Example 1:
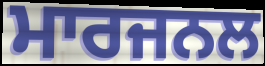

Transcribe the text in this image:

ਮਾਰਜਨਲ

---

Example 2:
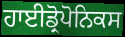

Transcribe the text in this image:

ਹਾਈਡ੍ਰੋਪੋਨਿਕਸ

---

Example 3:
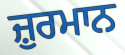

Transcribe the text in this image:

ਜ਼ੁਰਮਾਨ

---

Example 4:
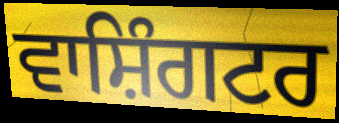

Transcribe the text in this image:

ਵਾਸ਼ਿੰਗਟਰ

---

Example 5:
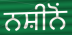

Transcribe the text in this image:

ਨਸ਼ੀਨੋਂ